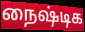
நைஷ்டிக